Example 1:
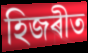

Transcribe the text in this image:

হিজৰীত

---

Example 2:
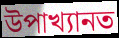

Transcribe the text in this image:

উপাখ্যানত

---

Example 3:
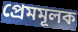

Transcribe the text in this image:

প্ৰেমমূলক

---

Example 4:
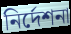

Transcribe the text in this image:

নিৰ্দেশনা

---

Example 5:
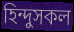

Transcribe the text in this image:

হিন্দুসকল